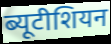
ब्यूटीशियन